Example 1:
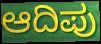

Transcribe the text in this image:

ಆದಿಪು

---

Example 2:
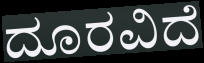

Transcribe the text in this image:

ದೂರವಿದೆ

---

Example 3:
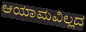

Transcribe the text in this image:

ಆಯಾಮವಿಲ್ಲದ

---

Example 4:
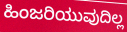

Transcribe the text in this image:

ಹಿಂಜರಿಯುವುದಿಲ್ಲ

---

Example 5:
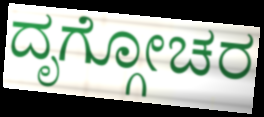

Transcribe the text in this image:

ದೃಗ್ಗೋಚರ